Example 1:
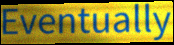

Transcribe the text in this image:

Eventually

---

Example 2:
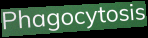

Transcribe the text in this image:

Phagocytosis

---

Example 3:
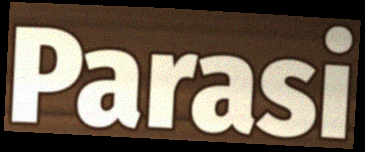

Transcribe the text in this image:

Parasi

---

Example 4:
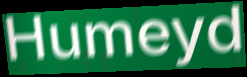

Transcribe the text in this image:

Humeyd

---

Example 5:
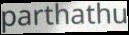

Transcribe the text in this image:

parthathu